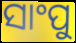
ସାଂପୁ